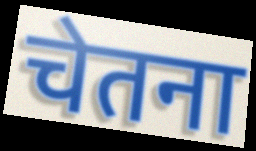
चेतना